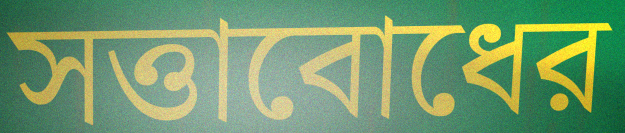
সত্তাবোধের